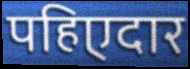
पहिएदार